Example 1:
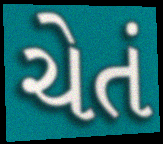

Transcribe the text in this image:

ચેતં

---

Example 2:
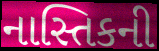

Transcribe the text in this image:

નાસ્તિકની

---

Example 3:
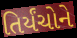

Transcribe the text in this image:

તિર્યંચોને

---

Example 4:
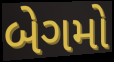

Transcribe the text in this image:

બેગમો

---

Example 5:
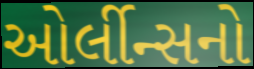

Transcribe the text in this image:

ઓર્લીન્સનો